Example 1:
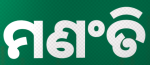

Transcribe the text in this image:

ମଣଂତି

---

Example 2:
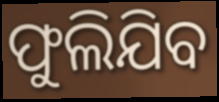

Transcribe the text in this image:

ଫୁଲିଯିବ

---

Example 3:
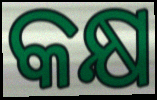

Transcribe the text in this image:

କକ୍ଷ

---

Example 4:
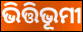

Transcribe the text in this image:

ଭିତ୍ତିଭୂମୀ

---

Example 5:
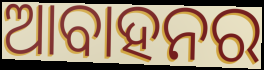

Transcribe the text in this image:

ଆବାହନର